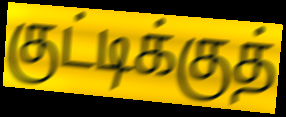
குட்டிக்குத்